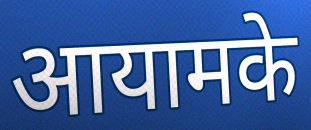
आयामके